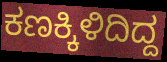
ಕಣಕ್ಕಿಳಿದಿದ್ದ